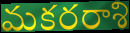
మకరరాశి